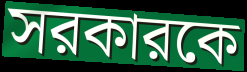
সরকারকে